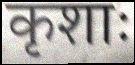
कृशाः